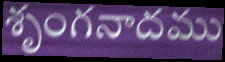
శృంగనాదము